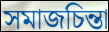
সমাজচিন্তা